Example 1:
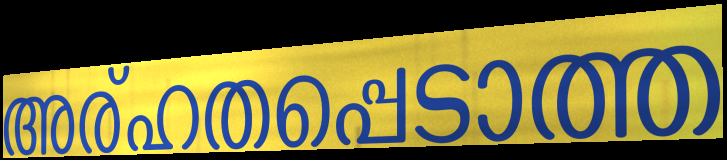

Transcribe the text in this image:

അര്ഹതപ്പെടാത്ത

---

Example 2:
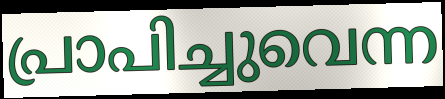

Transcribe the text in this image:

പ്രാപിച്ചുവെന്ന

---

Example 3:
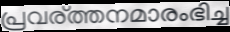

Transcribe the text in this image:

പ്രവര്ത്തനമാരംഭിച്ച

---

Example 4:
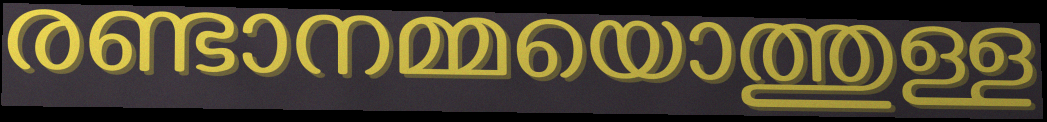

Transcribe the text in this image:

രണ്ടാനമ്മയൊത്തുള്ള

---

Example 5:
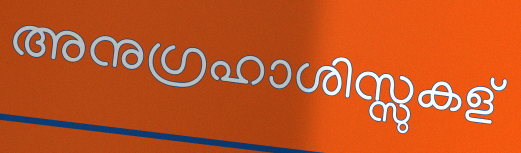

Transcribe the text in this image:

അനുഗ്രഹാശിസ്സുകള്